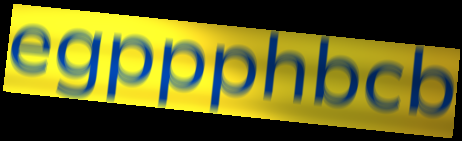
egppphbcb